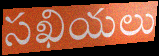
సఖియలు